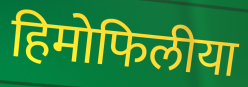
हिमोफिलीया